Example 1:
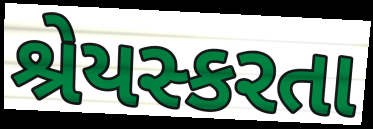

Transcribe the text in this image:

શ્રેયસ્કરતા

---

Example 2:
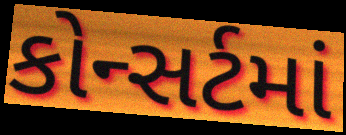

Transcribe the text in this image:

કોન્સર્ટમાં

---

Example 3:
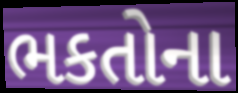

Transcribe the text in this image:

ભકતોના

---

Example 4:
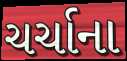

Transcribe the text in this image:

ચર્ચાના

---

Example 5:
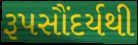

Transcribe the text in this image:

રૂપસૌંદર્યથી